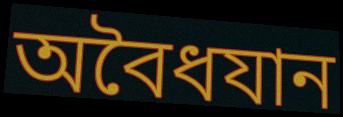
অবৈধযান